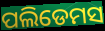
ପଲିଡେମସ